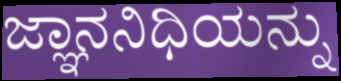
ಜ್ಞಾನನಿಧಿಯನ್ನು